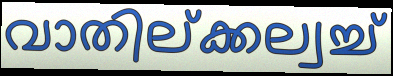
വാതില്ക്കല്വച്ച്